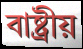
বাষ্ট্রীয়